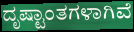
ದೃಷ್ಟಾಂತಗಳಾಗಿವೆ